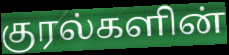
குரல்களின்